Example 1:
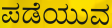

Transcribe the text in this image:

ಪಡೆಯುವ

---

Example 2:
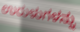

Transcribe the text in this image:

ಉರುಳುಗಳನ್ನು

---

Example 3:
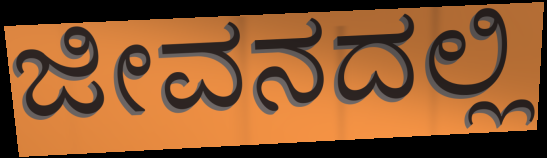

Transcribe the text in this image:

ಜೀವನದಲ್ಲಿ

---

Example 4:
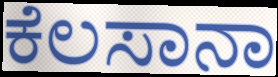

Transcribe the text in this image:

ಕೆಲಸಾನಾ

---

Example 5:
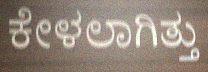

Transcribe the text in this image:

ಕೇಳಲಾಗಿತ್ತು